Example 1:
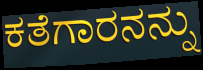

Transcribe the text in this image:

ಕತೆಗಾರನನ್ನು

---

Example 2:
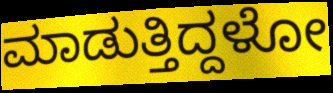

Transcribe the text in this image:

ಮಾಡುತ್ತಿದ್ದಳೋ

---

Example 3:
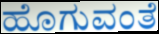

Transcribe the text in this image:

ಹೊಗುವಂತೆ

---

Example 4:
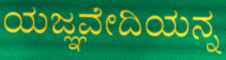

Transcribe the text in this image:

ಯಜ್ಞವೇದಿಯನ್ನ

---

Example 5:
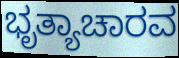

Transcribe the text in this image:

ಭೃತ್ಯಾಚಾರವ